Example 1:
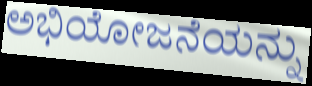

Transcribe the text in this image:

ಅಭಿಯೋಜನೆಯನ್ನು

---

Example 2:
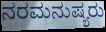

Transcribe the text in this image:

ನರಮನುಷ್ಯರು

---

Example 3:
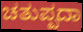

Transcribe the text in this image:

ಚತುಪ್ಪದಾ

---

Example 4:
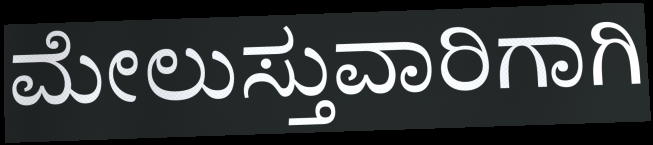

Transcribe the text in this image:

ಮೇಲುಸ್ತುವಾರಿಗಾಗಿ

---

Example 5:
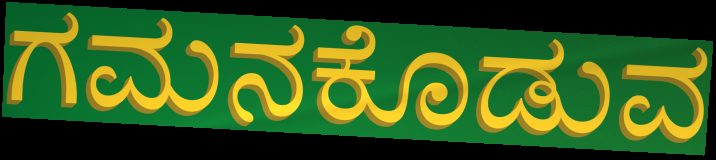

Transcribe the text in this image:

ಗಮನಕೊಡುವ